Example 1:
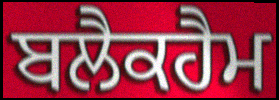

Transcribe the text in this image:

ਬਲੈਕਹੈਮ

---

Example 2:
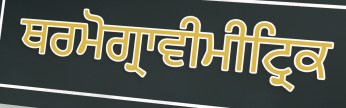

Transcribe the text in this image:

ਥਰਮੋਗ੍ਰਾਵੀਮੀਟ੍ਰਿਕ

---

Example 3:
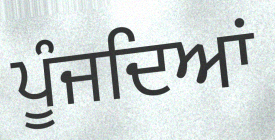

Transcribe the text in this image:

ਪੂੰਜਦਿਆਂ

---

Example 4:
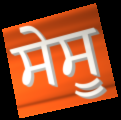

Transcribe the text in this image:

ਸੇਸੂ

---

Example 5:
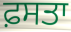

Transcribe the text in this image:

ਫ਼ਸਤਾ